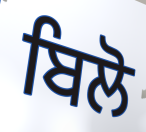
ਬਿਲੋ